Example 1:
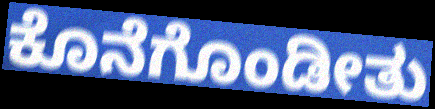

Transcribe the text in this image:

ಕೊನೆಗೊಂಡೀತು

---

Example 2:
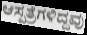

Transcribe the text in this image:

ಆಸ್ಪತ್ರೆಗಳಿದ್ದವು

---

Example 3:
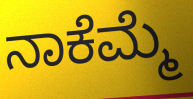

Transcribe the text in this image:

ನಾಕೆಮ್ಮೆ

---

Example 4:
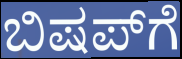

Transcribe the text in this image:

ಬಿಷಪ್‌ಗೆ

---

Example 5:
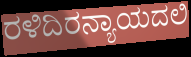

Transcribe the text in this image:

ರಳಿದಿರನ್ಯಾಯದಲಿ